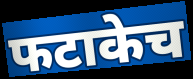
फटाकेच